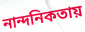
নান্দনিকতায়